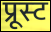
प्रूस्ट